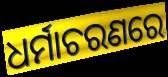
ଧର୍ମାଚରଣରେ